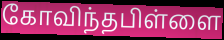
கோவிந்தபிள்ளை